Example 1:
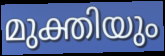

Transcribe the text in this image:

മുക്തിയും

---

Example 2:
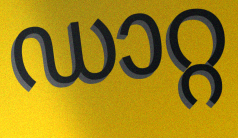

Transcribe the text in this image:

ഡാറ്റ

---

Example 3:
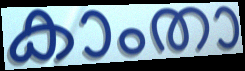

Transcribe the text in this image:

കാംതാ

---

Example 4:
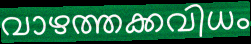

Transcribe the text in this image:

വാഴത്തക്കവിധം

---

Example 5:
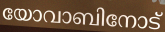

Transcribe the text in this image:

യോവാബിനോട്